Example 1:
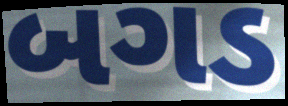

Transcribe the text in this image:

બગડ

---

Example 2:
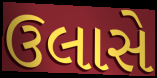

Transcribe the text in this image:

ઉલાસે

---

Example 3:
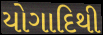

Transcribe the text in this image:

યોગાદિથી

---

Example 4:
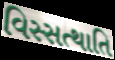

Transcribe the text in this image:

વિસ્સત્થાતિ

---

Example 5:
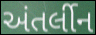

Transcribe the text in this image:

અંતર્લીન